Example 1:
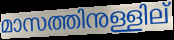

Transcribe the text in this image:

മാസത്തിനുള്ളില്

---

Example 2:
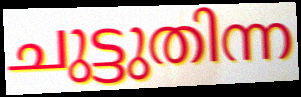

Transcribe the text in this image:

ചുട്ടുതിന്ന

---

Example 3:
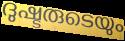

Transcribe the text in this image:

ദുഷ്ടരുടെയും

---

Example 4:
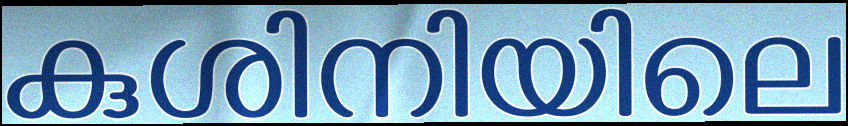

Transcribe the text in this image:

കുശിനിയിലെ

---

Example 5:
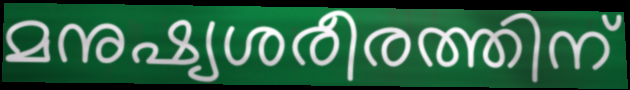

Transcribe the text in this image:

മനുഷ്യശരീരത്തിന്